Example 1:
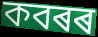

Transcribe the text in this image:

কবৰৰ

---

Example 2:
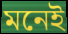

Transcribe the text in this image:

মনেই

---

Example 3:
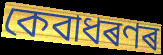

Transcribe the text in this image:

কেবাধৰণৰ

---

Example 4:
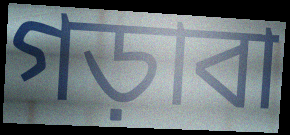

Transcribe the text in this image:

গড়াবা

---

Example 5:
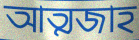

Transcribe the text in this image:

আত্মজাহ